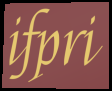
ifpri